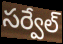
సర్వేల్